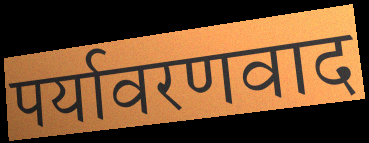
पर्यावरणवाद